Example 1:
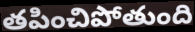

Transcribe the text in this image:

తపించిపోతుంది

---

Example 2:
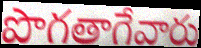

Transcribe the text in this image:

పొగతాగేవారు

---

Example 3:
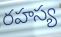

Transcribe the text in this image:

రహస్య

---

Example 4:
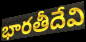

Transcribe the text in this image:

భారతీదేవి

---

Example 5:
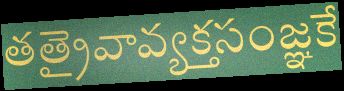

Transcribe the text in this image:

తత్రైవావ్యక్తసంజ్ఞకే